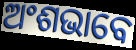
ଅଂଶଭାବେ